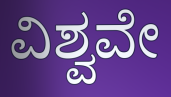
ವಿಶ್ವವೇ